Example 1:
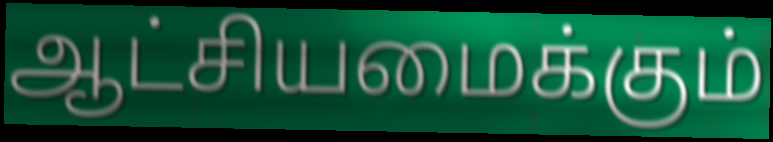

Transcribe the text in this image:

ஆட்சியமைக்கும்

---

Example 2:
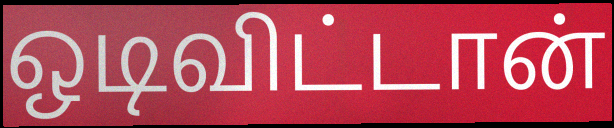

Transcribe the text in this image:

ஒடிவிட்டான்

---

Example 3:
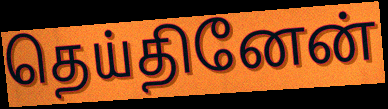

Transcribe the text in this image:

தெய்தினேன்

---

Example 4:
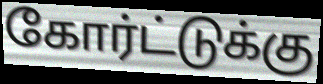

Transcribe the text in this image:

கோர்ட்டுக்கு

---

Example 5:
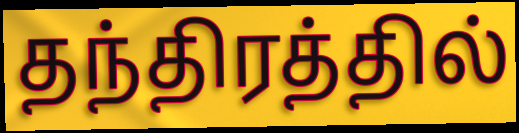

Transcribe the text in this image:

தந்திரத்தில்